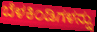
ಬೆಳಕಿಂಡಿಗಳನ್ನು